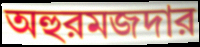
অহুরমজদার